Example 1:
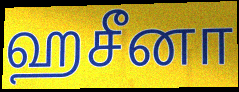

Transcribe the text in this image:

ஹசீனா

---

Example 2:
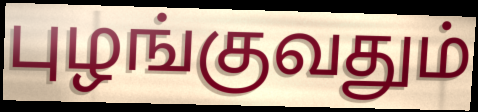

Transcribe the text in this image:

புழங்குவதும்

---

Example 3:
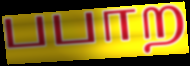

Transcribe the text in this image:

பபாற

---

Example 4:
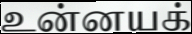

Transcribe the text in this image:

உன்னயக்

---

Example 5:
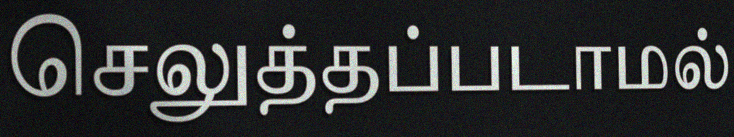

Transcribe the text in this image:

செலுத்தப்படாமல்